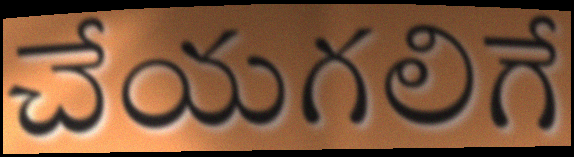
చేయగలిగే